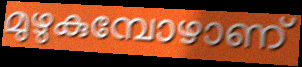
മുഴുകുമ്പോഴാണ്